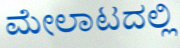
ಮೇಲಾಟದಲ್ಲಿ